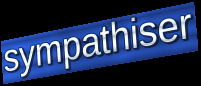
sympathiser